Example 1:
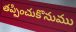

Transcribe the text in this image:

తప్పించుకొనుము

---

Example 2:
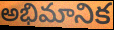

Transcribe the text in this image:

అభిమానిక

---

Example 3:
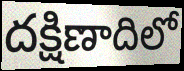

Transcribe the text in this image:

దక్షిణాదిలో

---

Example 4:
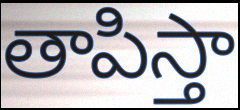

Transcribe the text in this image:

తాపిస్తా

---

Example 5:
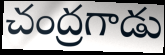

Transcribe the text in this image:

చంద్రగాడు